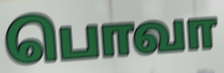
பொவா